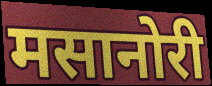
मसानोरी